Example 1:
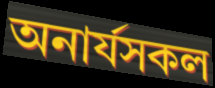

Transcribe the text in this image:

অনাৰ্যসকল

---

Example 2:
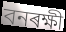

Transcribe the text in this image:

বনৰক্ষী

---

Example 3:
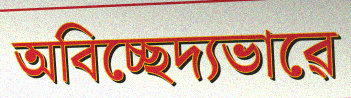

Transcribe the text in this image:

অবিচ্ছেদ্যভাৱে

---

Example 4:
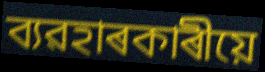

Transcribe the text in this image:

ব্যৱহাৰকাৰীয়ে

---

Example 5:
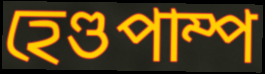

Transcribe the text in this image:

হেণ্ডপাম্প